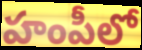
హంపీలో